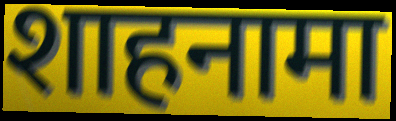
शाहनामा